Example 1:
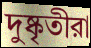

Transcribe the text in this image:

দুষ্কৃতীরা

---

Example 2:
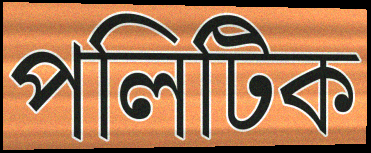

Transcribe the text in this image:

পলিটিক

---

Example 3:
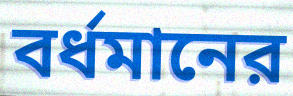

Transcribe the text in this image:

বর্ধমানের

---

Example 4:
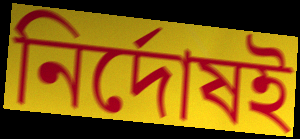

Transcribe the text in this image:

নির্দোষই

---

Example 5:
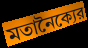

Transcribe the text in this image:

মতানৈক্যের